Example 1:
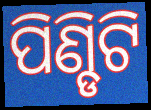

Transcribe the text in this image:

ପିଣ୍ଡିଟି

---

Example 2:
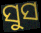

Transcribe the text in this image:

ସୁସ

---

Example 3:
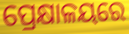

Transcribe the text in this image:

ପ୍ରେକ୍ଷାଳୟରେ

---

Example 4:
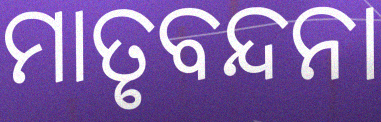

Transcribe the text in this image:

ମାତୃବନ୍ଦନା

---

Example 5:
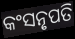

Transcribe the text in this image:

କଂସନୃପତି